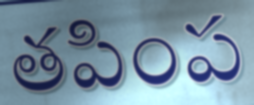
తపింప